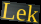
Lek